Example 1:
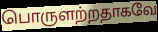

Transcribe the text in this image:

பொருளற்றதாகவே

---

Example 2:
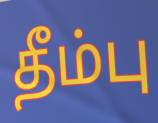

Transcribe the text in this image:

தீம்பு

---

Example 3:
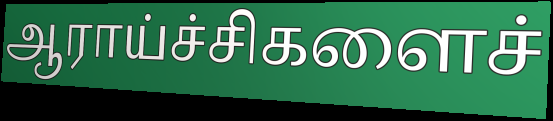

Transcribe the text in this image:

ஆராய்ச்சிகளைச்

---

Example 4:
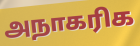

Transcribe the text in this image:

அநாகரிக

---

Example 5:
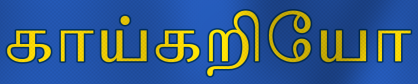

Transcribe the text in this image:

காய்கறியோ